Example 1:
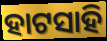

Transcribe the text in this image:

ହାଟସାହି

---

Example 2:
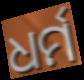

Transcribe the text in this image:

ଧର୍ମ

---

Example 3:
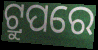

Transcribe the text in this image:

ଟ୍ରୁପରେ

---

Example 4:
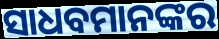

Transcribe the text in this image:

ସାଧବମାନଙ୍କର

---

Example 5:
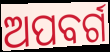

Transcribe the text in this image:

ଅପବର୍ଗ